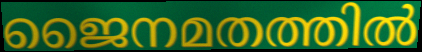
ജൈനമതത്തിൽ